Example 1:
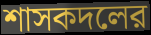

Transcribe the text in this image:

শাসকদলের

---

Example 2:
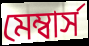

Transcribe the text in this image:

মেম্বার্স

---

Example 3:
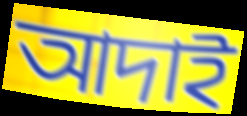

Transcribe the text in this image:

আদাই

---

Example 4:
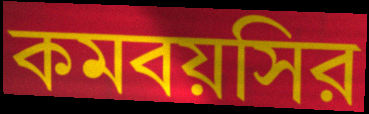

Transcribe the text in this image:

কমবয়সির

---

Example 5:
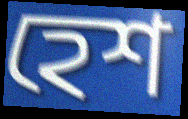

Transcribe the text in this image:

হেশ